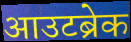
आउटब्रेक